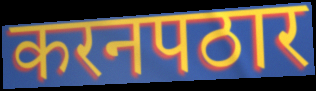
करनपठार